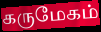
கருமேகம்